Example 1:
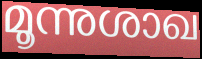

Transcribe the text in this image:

മൂന്നുശാഖ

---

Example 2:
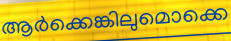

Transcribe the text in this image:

ആർക്കെങ്കിലുമൊക്കെ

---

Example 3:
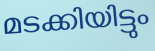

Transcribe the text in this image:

മടക്കിയിട്ടും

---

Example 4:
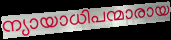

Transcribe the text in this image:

ന്യായാധിപന്മാരായ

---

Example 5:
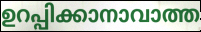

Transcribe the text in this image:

ഉറപ്പിക്കാനാവാത്ത